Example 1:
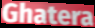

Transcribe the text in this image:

Ghatera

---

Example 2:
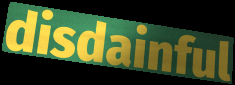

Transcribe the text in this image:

disdainful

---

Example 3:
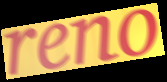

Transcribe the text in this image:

reno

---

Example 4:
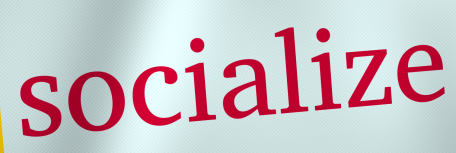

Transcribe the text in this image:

socialize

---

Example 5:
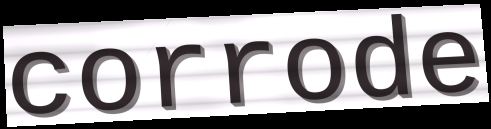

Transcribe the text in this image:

corrode